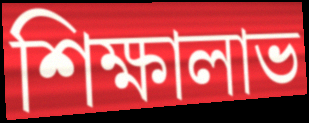
শিক্ষালাভ